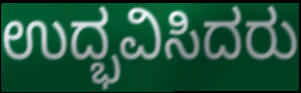
ಉದ್ಭವಿಸಿದರು